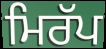
ਮਿਰੱਪ